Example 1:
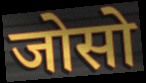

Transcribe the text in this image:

जोसो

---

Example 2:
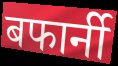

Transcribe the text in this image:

बफार्नी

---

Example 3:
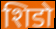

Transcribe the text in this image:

शिडो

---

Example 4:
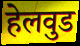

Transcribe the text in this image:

हेलवुड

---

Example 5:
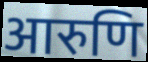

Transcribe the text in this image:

आरुणि